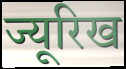
ज्यूरिख